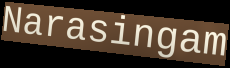
Narasingam